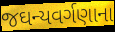
જઘન્યવર્ગણાના